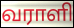
வராளி